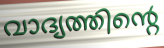
വാദ്യത്തിന്റെ